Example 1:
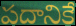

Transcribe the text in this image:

పదానికే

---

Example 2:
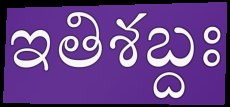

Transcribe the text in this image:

ఇతిశబ్దః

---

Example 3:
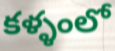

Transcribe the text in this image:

కళ్ళంలో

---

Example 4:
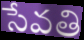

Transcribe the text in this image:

సేవతి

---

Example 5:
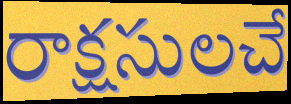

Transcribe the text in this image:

రాక్షసులచే